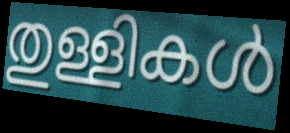
തുള്ളികൾ